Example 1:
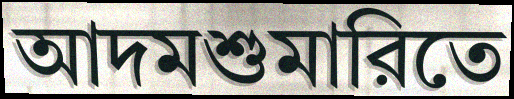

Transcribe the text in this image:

আদমশুমারিতে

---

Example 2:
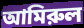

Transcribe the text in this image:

আমিরুল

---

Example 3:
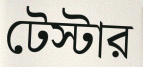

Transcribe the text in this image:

টেস্টার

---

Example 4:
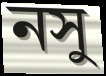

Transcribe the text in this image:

নসু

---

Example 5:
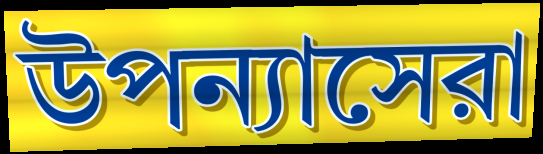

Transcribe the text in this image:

উপন্যাসেরা